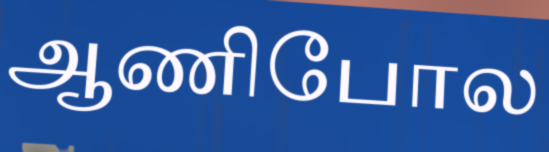
ஆணிபோல